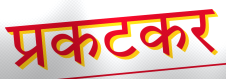
प्रकटकर